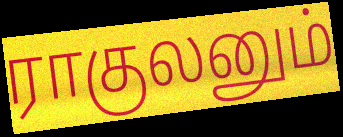
ராகுலனும்